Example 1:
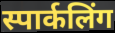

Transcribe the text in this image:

स्पार्कलिंग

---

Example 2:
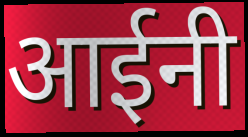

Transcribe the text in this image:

आईनी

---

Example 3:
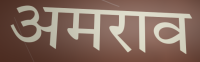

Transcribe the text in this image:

अमराव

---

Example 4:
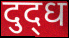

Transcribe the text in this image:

दुद्ध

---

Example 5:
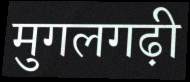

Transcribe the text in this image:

मुगलगढ़ी